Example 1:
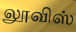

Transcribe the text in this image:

லூவிஸ்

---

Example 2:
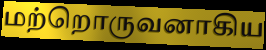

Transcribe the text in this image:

மற்றொருவனாகிய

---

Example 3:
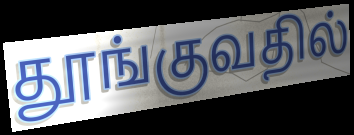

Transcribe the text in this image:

தூங்குவதில்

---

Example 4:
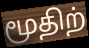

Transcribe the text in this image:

மூதிற்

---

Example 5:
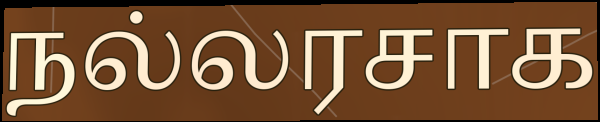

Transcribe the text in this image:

நல்லரசாக